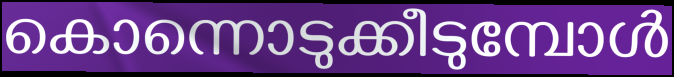
കൊന്നൊടുക്കീടുമ്പോൾ